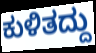
ಕುಳಿತದ್ದು